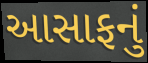
આસાફનું